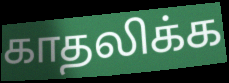
காதலிக்க